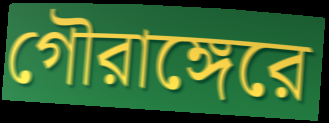
গৌরাঙ্গেরে